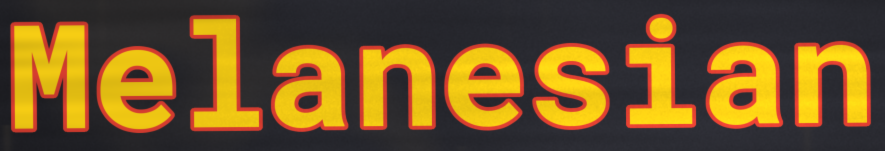
Melanesian